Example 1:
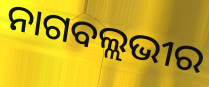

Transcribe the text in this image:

ନାଗବଲ୍ଲଭୀର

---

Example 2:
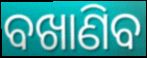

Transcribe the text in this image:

ବଖାଣିବ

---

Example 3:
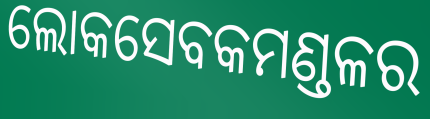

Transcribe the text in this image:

ଲୋକସେବକମଣ୍ଡଳର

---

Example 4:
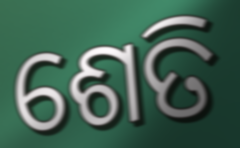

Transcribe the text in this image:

ଶେତି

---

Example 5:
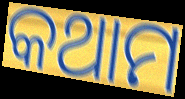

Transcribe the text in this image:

କଥାମ